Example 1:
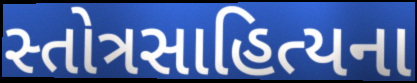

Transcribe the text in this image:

સ્તોત્રસાહિત્યના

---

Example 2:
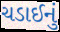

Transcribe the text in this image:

ચડાઈનું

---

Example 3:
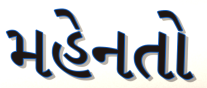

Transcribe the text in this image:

મહેનતો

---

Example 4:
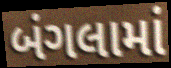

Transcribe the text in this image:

બંગલામાં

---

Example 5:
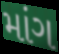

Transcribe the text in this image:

માંગ